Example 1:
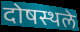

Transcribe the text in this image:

दोषस्थले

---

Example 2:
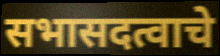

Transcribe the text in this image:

सभासदत्वाचे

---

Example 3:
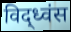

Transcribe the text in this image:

विद्ध्वंस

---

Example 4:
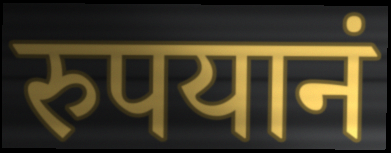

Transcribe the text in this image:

रुपयानं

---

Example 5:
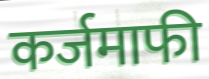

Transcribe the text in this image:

कर्जमाफी